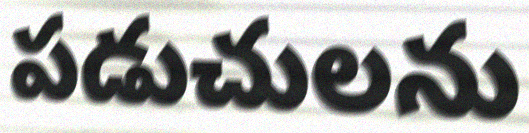
పడుచులను